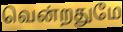
வென்றதுமே